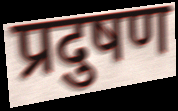
प्रदुषण